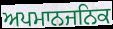
ਅਪਮਾਨਜਨਿਕ